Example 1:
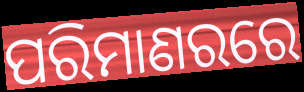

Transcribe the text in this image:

ପରିମାଣରରେ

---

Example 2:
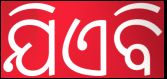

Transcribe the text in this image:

ଯିଏବି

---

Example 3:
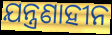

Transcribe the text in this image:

ଯନ୍ତ୍ରଣାହୀନ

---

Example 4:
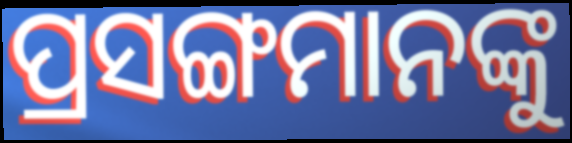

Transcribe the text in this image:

ପ୍ରସଙ୍ଗମାନଙ୍କୁ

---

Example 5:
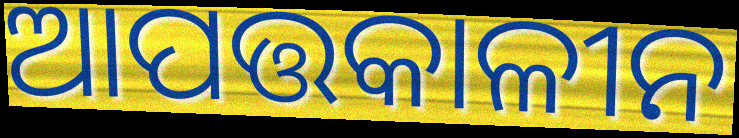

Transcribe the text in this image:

ଆପତ୍ତକାଳୀନ